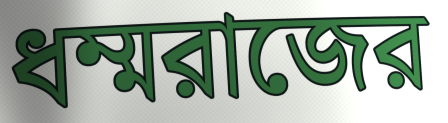
ধম্মরাজের